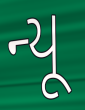
ન્યૂ